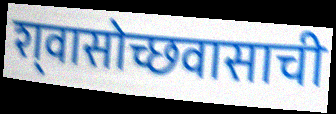
श्वासोच्छवासाची